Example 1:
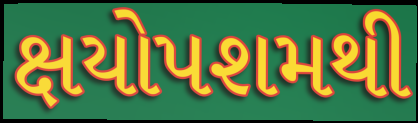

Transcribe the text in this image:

ક્ષયોપશમથી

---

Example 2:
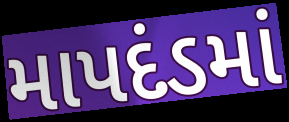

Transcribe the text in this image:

માપદંડમાં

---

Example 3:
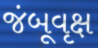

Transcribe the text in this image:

જંબૂવૃક્ષ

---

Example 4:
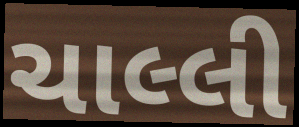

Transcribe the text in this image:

ચાલ્લી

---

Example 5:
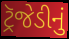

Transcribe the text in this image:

ટ્રૅજેડીનું